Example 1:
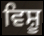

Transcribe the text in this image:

ਵਿਸ਼ੂ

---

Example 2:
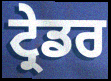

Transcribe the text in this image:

ਟ੍ਰੇਡਰ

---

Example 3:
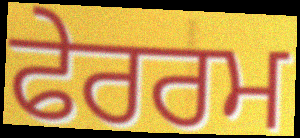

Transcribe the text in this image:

ਫੇਰਰਮ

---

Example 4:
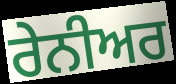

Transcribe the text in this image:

ਰੇਨੀਅਰ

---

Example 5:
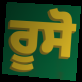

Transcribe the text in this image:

ਰੂਸੋ